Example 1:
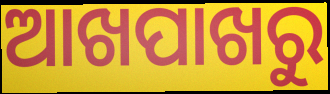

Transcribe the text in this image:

ଆଖପାଖରୁ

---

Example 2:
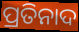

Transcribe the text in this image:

ପ୍ରତିନାଦ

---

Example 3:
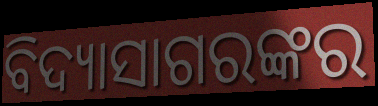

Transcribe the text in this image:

ବିଦ୍ୟାସାଗରଙ୍କର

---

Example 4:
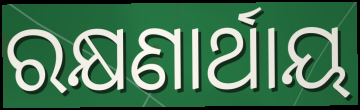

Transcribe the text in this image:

ରକ୍ଷଣାର୍ଥାୟ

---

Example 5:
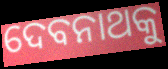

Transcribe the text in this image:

ଦେବନାଥକୁ